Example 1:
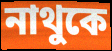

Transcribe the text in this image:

নাথুকে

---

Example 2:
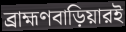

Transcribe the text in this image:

ব্রাহ্মণবাড়িয়ারই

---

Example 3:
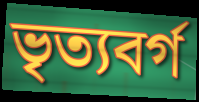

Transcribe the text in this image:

ভৃত্যবর্গ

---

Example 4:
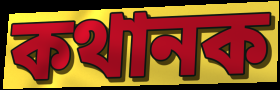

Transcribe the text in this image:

কথানক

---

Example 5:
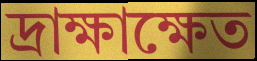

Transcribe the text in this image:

দ্রাক্ষাক্ষেত